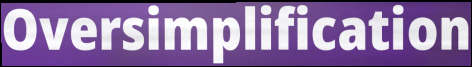
Oversimplification